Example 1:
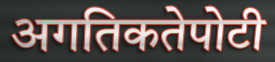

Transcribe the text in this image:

अगतिकतेपोटी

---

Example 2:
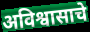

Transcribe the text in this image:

अविश्वासाचे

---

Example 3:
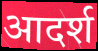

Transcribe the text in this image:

आदर्श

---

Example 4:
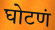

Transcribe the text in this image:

घोटणं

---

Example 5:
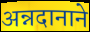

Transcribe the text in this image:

अन्नदानाने